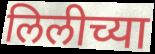
लिलीच्या